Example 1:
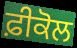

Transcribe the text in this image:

ਫ਼ੀਕੋਲ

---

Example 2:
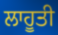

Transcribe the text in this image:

ਲਾਹੂਤੀ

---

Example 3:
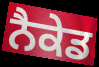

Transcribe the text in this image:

ਨੈਕੇਡ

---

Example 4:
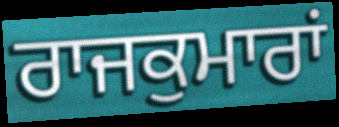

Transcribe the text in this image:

ਰਾਜਕੁਮਾਰਾਂ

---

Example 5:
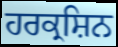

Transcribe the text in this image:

ਹਰਕ੍ਰਸ਼ਿਨ